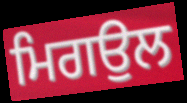
ਮਿਗਉਲ